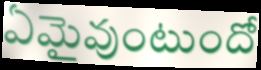
ఏమైవుంటుందో